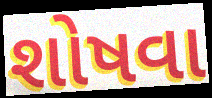
શોષવા